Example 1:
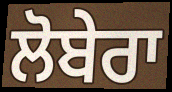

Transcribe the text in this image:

ਲੋਬੇਰਾ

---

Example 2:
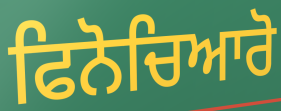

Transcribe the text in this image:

ਫਿਨੋਚਿਆਰੋ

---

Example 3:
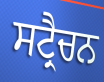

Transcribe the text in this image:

ਸਟ੍ਰੈਚਨ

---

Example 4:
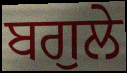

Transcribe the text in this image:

ਬਗੁਲੇ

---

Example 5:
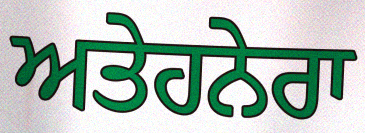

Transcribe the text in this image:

ਅਤੇਹਨੇਰਾ